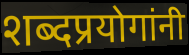
शब्दप्रयोगांनी